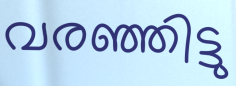
വരഞ്ഞിട്ടു